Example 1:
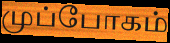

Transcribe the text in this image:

முப்போகம்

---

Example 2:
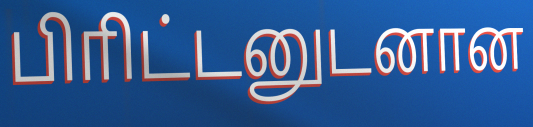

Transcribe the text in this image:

பிரிட்டனுடனான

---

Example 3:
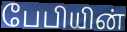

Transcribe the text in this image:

பேபியின்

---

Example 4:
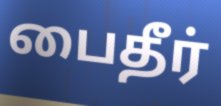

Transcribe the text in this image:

பைதீர்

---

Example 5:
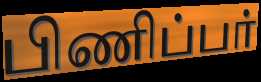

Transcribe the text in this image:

பிணிப்பர்